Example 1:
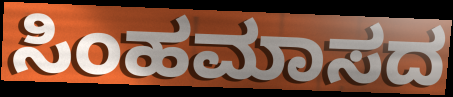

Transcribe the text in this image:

ಸಿಂಹಮಾಸದ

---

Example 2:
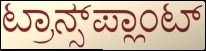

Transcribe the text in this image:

ಟ್ರಾನ್ಸ್‌ಪ್ಲಾಂಟ್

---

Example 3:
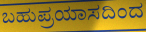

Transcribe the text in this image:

ಬಹುಪ್ರಯಾಸದಿಂದ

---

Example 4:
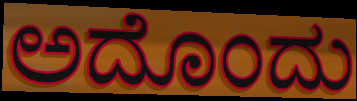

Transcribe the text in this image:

ಅದೊಂದು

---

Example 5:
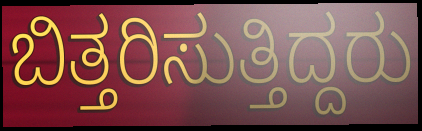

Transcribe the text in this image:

ಬಿತ್ತರಿಸುತ್ತಿದ್ದರು